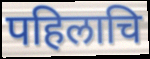
पहिलाचि